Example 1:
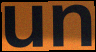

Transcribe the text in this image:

un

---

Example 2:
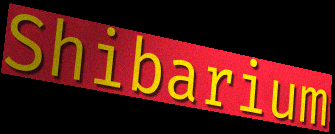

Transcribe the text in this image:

Shibarium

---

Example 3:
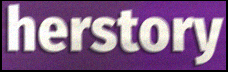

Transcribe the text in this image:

herstory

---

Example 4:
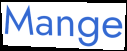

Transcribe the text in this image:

Mange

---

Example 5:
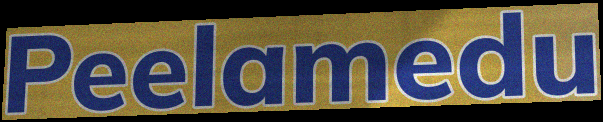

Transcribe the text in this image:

Peelamedu